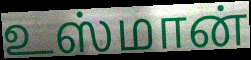
உஸ்மான்